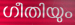
ഗീതിയും